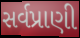
સર્વપ્રાણી